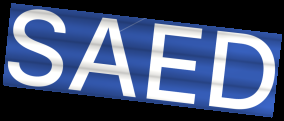
SAED